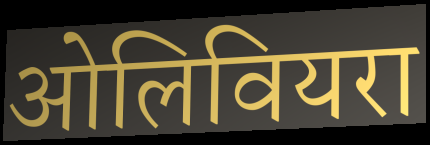
ओलिवियरा